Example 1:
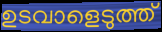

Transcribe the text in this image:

ഉടവാളെടുത്ത്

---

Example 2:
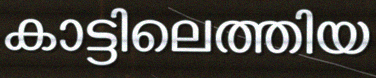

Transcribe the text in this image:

കാട്ടിലെത്തിയ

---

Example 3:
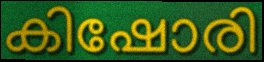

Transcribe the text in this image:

കിഷോരി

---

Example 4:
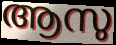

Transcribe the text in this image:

ആസു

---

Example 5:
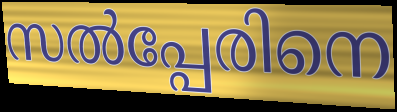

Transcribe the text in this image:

സൽപ്പേരിനെ